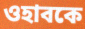
ওহাবকে